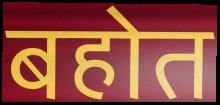
बहोत